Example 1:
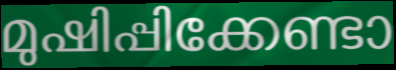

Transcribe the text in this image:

മുഷിപ്പിക്കേണ്ടാ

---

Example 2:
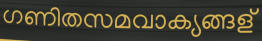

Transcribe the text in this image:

ഗണിതസമവാക്യങ്ങള്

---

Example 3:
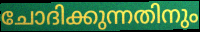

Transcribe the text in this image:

ചോദിക്കുന്നതിനും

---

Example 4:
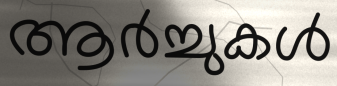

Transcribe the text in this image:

ആർച്ചുകൾ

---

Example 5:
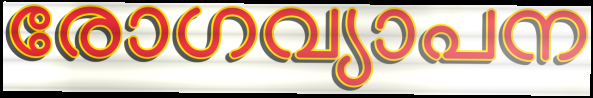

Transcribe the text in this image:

രോഗവ്യാപന